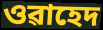
ওৱাহেদ